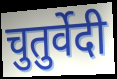
चुतुर्वेदी